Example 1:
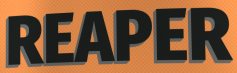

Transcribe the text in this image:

REAPER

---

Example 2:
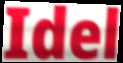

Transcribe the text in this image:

Idel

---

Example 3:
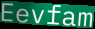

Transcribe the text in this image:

Eevfam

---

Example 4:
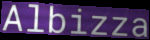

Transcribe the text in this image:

Albizza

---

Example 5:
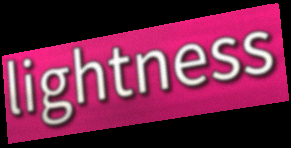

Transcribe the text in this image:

lightness